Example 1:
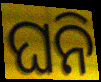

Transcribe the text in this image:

ଘନି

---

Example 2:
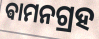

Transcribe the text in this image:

ଵାମନଗ୍ରହ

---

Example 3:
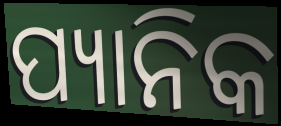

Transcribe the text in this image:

ପ୍ୟାନିକ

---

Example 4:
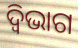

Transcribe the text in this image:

ଦ୍ୱିଭାଗ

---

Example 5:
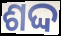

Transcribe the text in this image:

ଶଦ୍ଦ